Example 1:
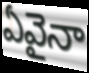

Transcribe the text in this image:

ఏవైనా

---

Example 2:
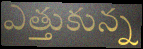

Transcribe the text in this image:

ఎత్తుకున్న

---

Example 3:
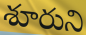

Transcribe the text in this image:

శూరుని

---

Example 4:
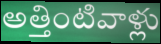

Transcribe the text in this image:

అత్తింటివాళ్లు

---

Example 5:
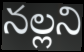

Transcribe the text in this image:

నల్లని